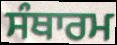
ਸੰਥਾਰਮ